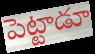
పెట్టాడూ